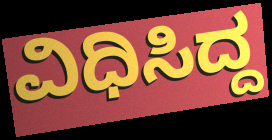
ವಿಧಿಸಿದ್ದ